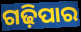
ଗଢ଼ିପାର